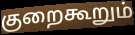
குறைகூறும்